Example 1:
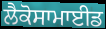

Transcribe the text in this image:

ਲੈਕੋਸਾਮਾਈਡ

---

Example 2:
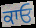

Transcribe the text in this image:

ਕਾਓ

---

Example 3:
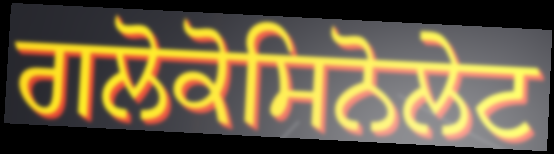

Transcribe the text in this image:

ਗਲੋਕੋਸਿਨੋਲੇਟ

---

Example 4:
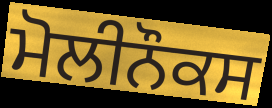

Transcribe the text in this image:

ਮੋਲੀਨੌਕਸ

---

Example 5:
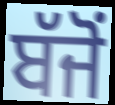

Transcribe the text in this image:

ਬੱਜੋਂ